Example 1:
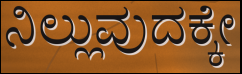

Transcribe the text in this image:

ನಿಲ್ಲುವುದಕ್ಕೇ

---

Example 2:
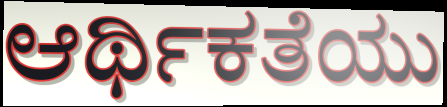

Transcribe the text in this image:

ಆರ್ಥಿಕತೆಯು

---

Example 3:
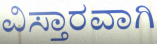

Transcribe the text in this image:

ವಿಸ್ತಾರವಾಗಿ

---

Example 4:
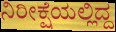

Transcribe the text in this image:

ನಿರೀಕ್ಷೆಯಲ್ಲಿದ್ದ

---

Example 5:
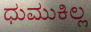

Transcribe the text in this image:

ಧುಮುಕಿಲ್ಲ